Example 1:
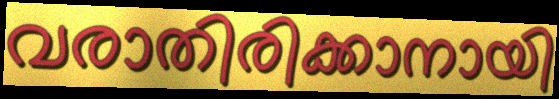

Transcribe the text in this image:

വരാതിരിക്കാനായി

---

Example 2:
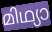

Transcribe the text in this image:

മിഥ്യാ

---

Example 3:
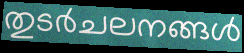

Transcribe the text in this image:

തുടർചലനങ്ങൾ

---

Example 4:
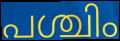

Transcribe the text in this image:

പശ്ചിം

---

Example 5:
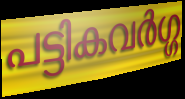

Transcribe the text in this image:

പട്ടികവർഗ്ഗ